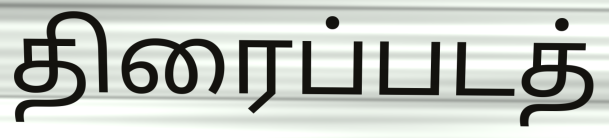
திரைப்படத்